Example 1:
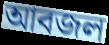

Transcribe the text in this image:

আবজল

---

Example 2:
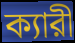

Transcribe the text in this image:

ক্যারী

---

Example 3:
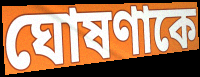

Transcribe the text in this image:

ঘোষণাকে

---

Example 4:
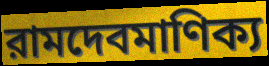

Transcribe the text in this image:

রামদেবমাণিক্য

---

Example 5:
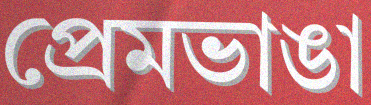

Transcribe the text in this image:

প্রেমভাঙা